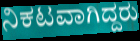
ನಿಕಟವಾಗಿದ್ದರು